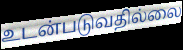
உடன்படுவதில்லை